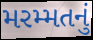
મરમ્મતનું